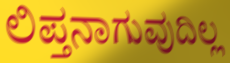
ಲಿಪ್ತನಾಗುವುದಿಲ್ಲ